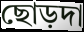
ছোড়দা